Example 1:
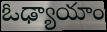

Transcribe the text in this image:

ఓఢ్యాయాం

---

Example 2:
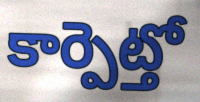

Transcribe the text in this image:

కార్పెట్తో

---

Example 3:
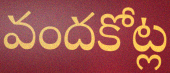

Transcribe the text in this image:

వందకోట్ల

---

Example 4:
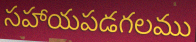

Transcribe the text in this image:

సహాయపడగలము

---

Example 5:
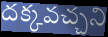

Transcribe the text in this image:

దక్కవచ్చని